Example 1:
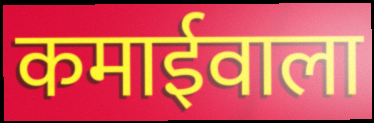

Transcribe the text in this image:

कमाईवाला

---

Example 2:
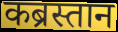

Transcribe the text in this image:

कब्रस्तान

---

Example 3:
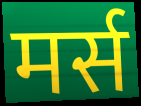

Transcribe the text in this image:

मर्स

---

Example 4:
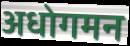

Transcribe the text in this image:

अधोगमन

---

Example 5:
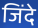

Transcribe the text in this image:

जिंदे